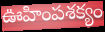
ఊహింపశక్యం